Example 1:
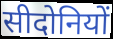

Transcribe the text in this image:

सीदोनियों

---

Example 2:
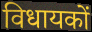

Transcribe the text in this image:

विधायकों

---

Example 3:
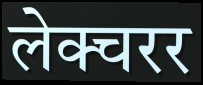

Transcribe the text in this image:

लेक्चरर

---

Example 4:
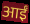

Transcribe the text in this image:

आईं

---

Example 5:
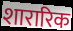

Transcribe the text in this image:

शारारिक